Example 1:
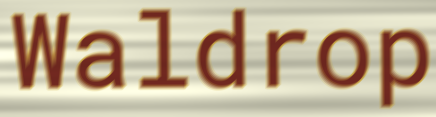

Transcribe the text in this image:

Waldrop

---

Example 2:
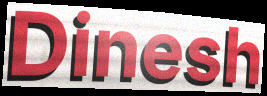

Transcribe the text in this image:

Dinesh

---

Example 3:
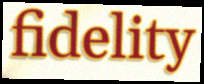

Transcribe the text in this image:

fidelity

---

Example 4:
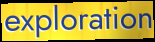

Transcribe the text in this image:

exploration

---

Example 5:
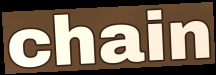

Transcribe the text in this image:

chain